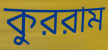
কুররাম